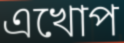
এখোপ